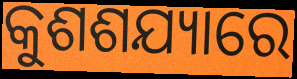
କୁଶଶଯ୍ୟାରେ